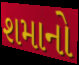
શમાનો